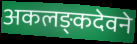
अकलङ्कदेवने